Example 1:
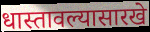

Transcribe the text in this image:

धास्तावल्यासारखे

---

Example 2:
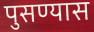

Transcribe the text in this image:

पुसण्यास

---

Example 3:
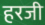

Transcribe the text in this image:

हरजी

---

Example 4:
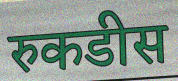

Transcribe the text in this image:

रुकडीस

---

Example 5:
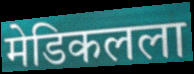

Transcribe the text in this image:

मेडिकलला